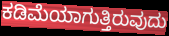
ಕಡಿಮೆಯಾಗುತ್ತಿರುವುದು